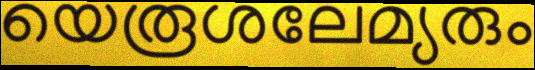
യെരൂശലേമ്യരും